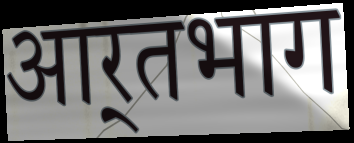
आर्तभाग